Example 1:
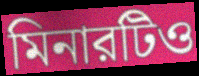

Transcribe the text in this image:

মিনারটিও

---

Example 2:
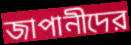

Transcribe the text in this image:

জাপানীদের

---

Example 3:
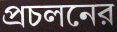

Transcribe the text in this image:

প্রচলনের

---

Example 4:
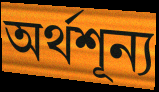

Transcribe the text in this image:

অর্থশূন্য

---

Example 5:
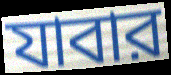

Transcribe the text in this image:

যাবার